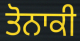
ਤੋਨਾਕੀ